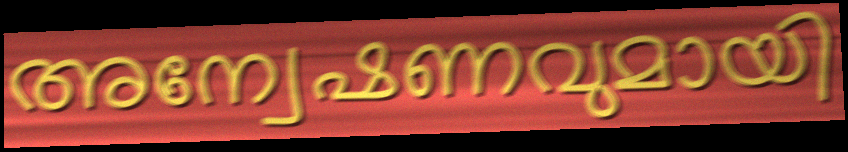
അന്വേഷണവുമായി